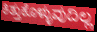
ಕಿತ್ತುಕೊಳ್ಳುವುದಿಲ್ಲ